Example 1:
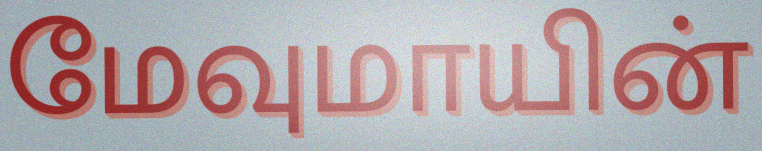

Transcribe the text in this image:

மேவுமாயின்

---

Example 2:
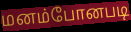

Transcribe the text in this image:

மனம்போனபடி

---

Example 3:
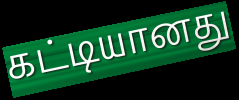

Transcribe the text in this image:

கட்டியானது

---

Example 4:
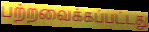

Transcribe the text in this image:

பற்றவைக்கப்பட்டது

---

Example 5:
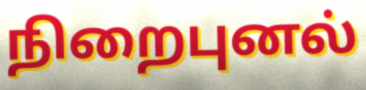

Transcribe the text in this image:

நிறைபுனல்